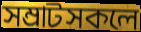
সম্ৰাটসকলে